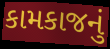
કામકાજનું